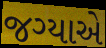
જગ્યાએ